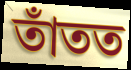
তাঁতত